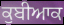
ਕੁਬੀਆਕ